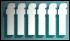
ffffff